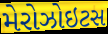
મેરોઝોઇટસ